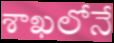
శాఖలోనే